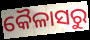
କୈଳାସରୁ